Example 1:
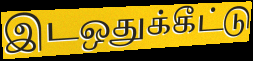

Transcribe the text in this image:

இடஒதுக்கீட்டு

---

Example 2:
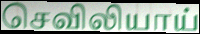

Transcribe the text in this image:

செவிலியாய்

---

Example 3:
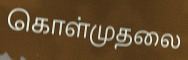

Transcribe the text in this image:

கொள்முதலை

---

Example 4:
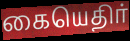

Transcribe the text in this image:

கையெதிர்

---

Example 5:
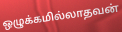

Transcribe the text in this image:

ஒழுக்கமில்லாதவன்